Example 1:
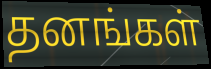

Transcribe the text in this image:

தனங்கள்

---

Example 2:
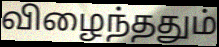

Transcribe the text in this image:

விழைந்ததும்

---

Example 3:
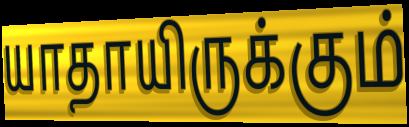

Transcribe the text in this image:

யாதாயிருக்கும்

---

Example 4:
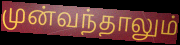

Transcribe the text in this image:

முன்வந்தாலும்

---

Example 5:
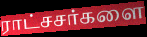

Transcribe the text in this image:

ராட்சசர்களை